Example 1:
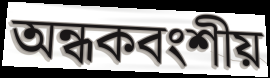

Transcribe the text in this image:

অন্ধকবংশীয়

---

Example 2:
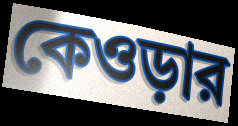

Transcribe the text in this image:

কেওড়ার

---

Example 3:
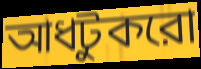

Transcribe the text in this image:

আধটুকরো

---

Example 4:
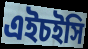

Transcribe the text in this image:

এইচইসি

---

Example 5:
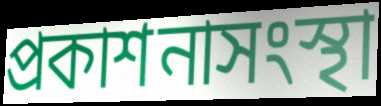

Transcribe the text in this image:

প্রকাশনাসংস্থা